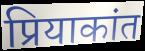
प्रियाकांत